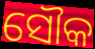
ସୌକ